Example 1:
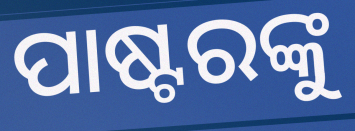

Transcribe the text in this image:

ପାଷ୍ଟରଙ୍କୁ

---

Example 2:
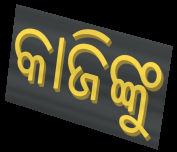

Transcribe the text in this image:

କାଜିଙ୍କୁ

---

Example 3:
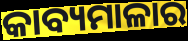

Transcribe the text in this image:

କାବ୍ୟମାଳାର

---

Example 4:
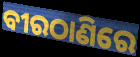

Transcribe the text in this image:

ବୀରଠାଣିରେ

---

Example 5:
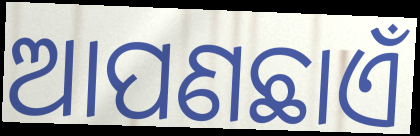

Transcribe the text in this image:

ଆପଣଛାଏଁ